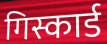
गिस्कार्ड